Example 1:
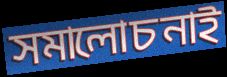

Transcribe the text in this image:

সমালোচনাই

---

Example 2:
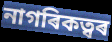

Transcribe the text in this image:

নাগৰিকত্বৰ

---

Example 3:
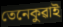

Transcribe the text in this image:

তেনেকুৱাই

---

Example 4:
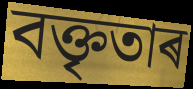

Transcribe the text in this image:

বক্তৃতাৰ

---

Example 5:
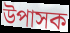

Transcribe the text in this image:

উপাসক